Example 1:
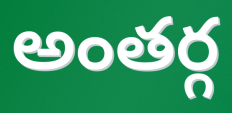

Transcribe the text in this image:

అంతర్గ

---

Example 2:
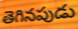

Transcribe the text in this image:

తెగినపుడు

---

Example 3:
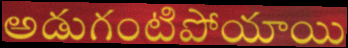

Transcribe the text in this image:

అడుగంటిపోయాయి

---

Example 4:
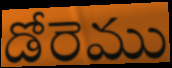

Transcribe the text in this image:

డోరెము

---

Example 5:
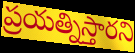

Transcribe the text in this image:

ప్రయత్నిస్తారని